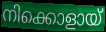
നിക്കൊളായ്